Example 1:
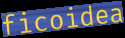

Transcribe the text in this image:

ficoidea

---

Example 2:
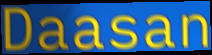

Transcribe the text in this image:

Daasan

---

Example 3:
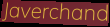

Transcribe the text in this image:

Javerchand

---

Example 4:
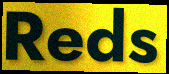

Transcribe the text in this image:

Reds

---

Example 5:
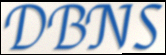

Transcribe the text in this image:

DBNS